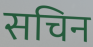
सचिन